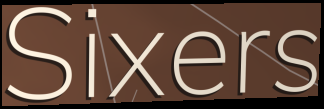
Sixers